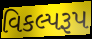
વિકલ્પરૂપ